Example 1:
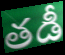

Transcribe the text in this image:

తడీ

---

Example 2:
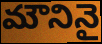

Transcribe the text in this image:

మౌనినై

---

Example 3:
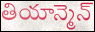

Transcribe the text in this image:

తియాన్మెన్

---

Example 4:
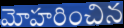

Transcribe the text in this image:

మోహరించిన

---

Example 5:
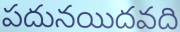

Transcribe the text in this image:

పదునయిదవది